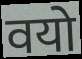
वयो